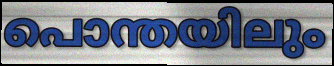
പൊന്തയിലും